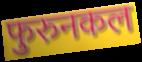
फुरुनकल